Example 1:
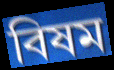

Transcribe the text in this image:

বিষম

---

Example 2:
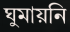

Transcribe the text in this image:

ঘুমায়নি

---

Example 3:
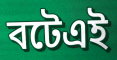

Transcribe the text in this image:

বটেএই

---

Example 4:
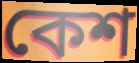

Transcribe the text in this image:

কেশ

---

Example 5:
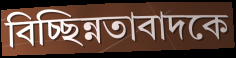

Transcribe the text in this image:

বিচ্ছিন্নতাবাদকে